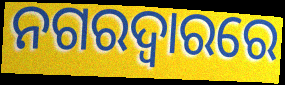
ନଗରଦ୍ୱାରରେ